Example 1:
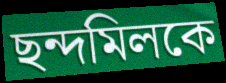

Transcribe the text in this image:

ছন্দমিলকে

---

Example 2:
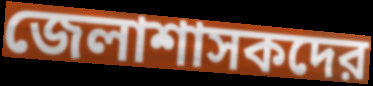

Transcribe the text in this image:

জেলাশাসকদের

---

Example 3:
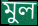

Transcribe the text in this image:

মুল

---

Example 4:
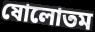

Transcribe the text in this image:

ষোলোতম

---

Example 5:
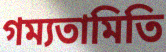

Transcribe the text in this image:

গম্যতামিতি